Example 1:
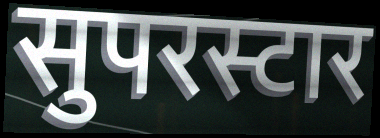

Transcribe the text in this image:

सुपरस्टार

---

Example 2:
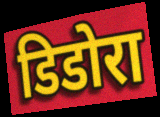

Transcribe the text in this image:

डिडोरा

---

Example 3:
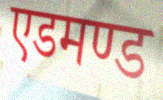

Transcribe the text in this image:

एडमण्ड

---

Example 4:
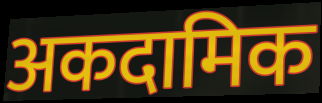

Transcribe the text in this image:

अकदामिक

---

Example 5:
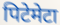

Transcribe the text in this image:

पिटेमेटा